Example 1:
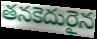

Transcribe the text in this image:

తనకెదురైన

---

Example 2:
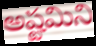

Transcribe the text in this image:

అష్టమిని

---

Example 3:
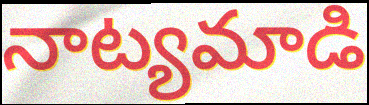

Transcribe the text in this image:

నాట్యమాడి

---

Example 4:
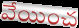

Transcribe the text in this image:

వేయించ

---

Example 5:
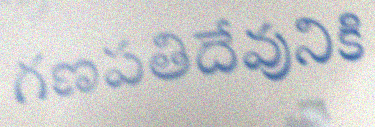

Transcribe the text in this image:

గణపతిదేవునికి